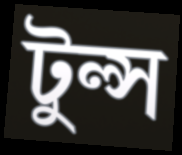
টুল্স